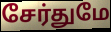
சேர்துமே